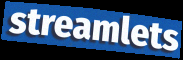
streamlets